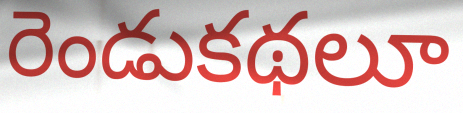
రెండుకథలూ